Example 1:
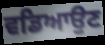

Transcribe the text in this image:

ਵਡਿਆਉਣ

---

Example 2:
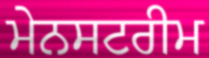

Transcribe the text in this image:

ਮੇਨਸਟਰੀਮ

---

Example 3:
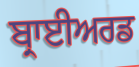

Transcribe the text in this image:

ਬ੍ਰਾਈਅਰਡ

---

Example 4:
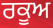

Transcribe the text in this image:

ਰਕੂਅ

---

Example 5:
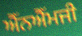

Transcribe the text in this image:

ਐੱਨਐੱਮਜੀ